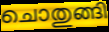
ചൊതുങ്ങി